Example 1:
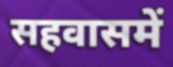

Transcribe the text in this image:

सहवासमें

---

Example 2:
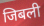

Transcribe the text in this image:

जिबली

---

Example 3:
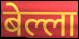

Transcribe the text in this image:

बेल्ला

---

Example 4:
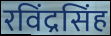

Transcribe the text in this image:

रविंद्रसिंह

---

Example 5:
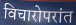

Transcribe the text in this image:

विचारोपरांत